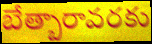
బేత్బారావరకు